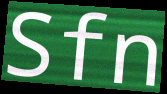
Sfn